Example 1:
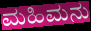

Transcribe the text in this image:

ಮಹಿಮನು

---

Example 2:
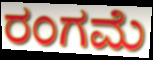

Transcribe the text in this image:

ರಂಗಮೆ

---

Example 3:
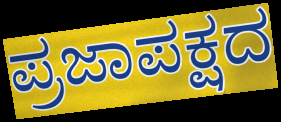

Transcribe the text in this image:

ಪ್ರಜಾಪಕ್ಷದ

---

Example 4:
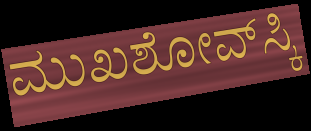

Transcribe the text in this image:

ಮುಖಶೋವ್‌ಸ್ಕಿ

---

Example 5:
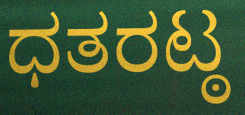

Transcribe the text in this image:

ಧತರಟ್ಠ